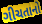
ગીચતાનો